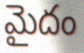
మైదం